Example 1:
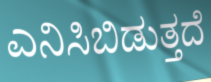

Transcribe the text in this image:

ಎನಿಸಿಬಿಡುತ್ತದೆ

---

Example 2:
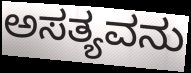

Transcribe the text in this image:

ಅಸತ್ಯವನು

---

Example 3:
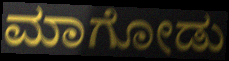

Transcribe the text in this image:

ಮಾಗೋಡು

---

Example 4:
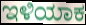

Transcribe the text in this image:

ಇಳಿಯಾಕ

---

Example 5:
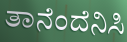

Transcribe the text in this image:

ತಾನೆಂದೆನಿಸಿ